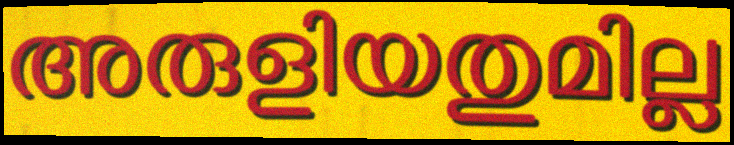
അരുളിയതുമില്ല